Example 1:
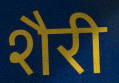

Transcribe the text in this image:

शैरी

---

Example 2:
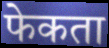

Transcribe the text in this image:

फेकता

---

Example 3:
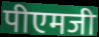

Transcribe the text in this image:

पीएमजी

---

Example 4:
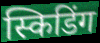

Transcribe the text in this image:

स्किडिंग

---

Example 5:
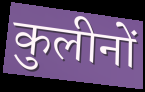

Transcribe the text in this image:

कुलीनों